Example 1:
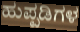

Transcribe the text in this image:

ಹುಪ್ಪಡಿಗಳ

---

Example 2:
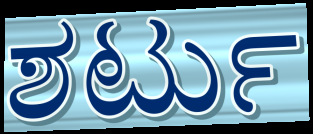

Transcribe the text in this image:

ಶರ್ಟು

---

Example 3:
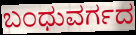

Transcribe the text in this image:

ಬಂಧುವರ್ಗದ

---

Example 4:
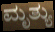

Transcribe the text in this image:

ಮೃತ್ಯು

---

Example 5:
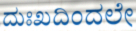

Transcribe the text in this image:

ದುಃಖದಿಂದಲೇ